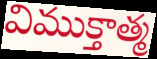
విముక్తాత్మ